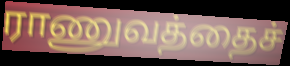
ராணுவத்தைச்